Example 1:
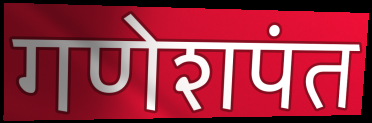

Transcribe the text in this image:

गणेशपंत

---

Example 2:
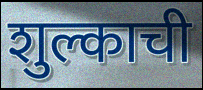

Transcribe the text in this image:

शुल्काची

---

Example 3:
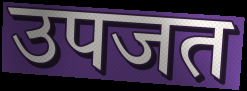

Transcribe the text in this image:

उपजत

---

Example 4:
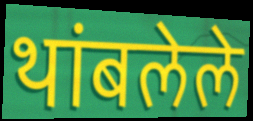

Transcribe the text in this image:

थांबलेले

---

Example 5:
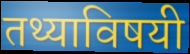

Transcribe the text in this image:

तथ्याविषयी